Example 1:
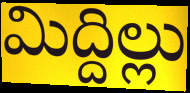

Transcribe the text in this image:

మిద్దిల్లు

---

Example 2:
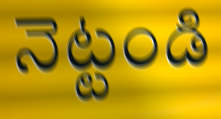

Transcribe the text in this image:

నెట్టండి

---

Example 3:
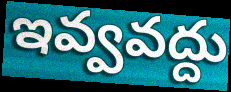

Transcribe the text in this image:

ఇవ్వవద్దు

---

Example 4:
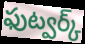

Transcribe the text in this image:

ఫుట్వర్క్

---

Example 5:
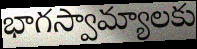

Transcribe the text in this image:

భాగస్వామ్యాలకు